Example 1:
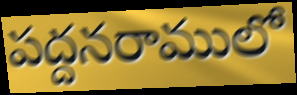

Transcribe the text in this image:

పద్దనరాములో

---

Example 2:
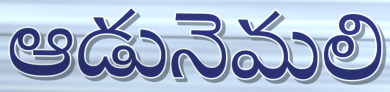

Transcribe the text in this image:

ఆడునెమలి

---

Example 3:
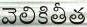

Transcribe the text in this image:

వెలికితీత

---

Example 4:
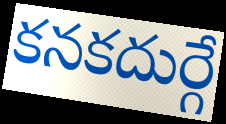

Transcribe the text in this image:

కనకదుర్గే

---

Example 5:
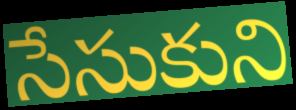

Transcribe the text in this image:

సేసుకుని